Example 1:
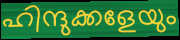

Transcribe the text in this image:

ഹിന്ദുക്കളേയും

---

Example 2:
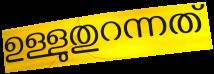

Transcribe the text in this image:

ഉള്ളുതുറന്നത്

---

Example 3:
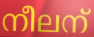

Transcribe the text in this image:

നീലന്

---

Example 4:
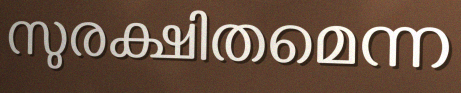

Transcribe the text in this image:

സുരക്ഷിതമെന്ന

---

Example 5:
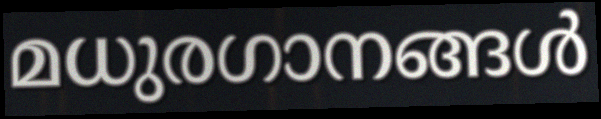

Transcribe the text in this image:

മധുരഗാനങ്ങൾ